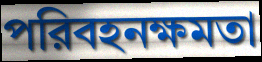
পরিবহনক্ষমতা